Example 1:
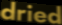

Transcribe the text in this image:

dried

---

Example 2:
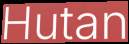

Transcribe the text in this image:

Hutan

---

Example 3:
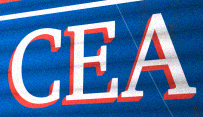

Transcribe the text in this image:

CEA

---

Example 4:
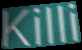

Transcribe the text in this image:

Killi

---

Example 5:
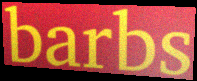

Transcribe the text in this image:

barbs